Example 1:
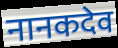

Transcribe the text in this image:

नानकदेव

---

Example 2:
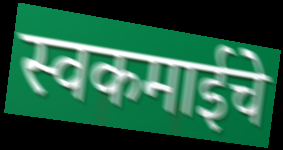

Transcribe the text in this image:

स्वकमाईचे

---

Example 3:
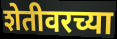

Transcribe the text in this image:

शेतीवरच्या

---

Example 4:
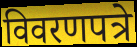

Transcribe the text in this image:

विवरणपत्रे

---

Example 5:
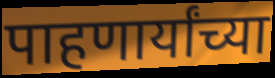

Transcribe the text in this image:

पाहणार्यांच्या